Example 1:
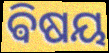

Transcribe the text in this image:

ଵିଷୟ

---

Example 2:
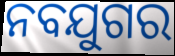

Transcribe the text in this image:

ନବଯୁଗର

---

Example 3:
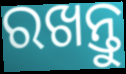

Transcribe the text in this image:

ରଖନ୍ତୁ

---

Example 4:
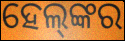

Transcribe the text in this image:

ହେଲ୍‌ଙ୍କର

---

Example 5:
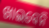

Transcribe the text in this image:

ଖାଇବେନି